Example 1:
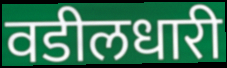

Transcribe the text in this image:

वडीलधारी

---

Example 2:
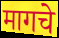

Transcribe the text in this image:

मागचे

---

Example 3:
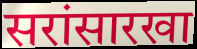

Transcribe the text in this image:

सरांसारखा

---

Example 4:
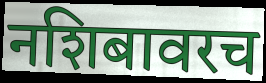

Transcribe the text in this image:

नशिबावरच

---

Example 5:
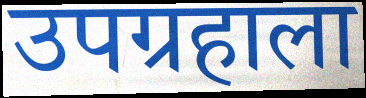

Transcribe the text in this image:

उपग्रहाला